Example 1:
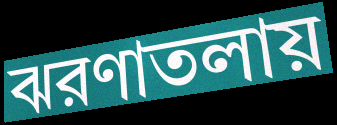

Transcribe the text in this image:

ঝরণাতলায়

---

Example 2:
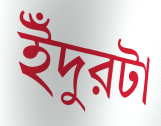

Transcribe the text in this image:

ইঁদুরটা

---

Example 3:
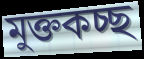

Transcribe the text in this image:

মুক্তকচ্ছ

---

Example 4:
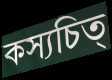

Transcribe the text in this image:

কস্যচিত্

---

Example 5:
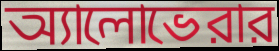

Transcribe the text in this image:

অ্যালোভেরার